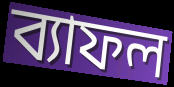
ব্যাফল